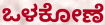
ಒಳಕೋಣೆ